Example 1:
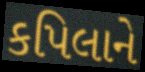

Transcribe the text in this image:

કપિલાને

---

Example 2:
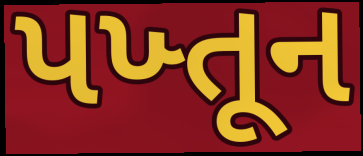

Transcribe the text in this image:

પખ્તૂન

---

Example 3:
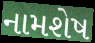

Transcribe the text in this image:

નામશેષ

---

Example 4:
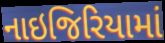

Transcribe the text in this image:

નાઇજિરિયામાં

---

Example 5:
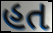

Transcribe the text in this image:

હત